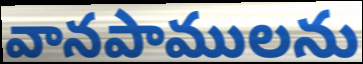
వానపాములను